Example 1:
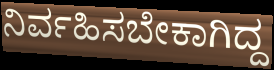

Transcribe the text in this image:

ನಿರ್ವಹಿಸಬೇಕಾಗಿದ್ದ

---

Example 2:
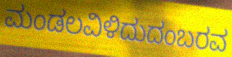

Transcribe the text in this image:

ಮಂಡಲವಿಳಿದುದಂಬರವ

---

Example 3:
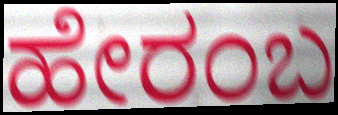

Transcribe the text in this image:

ಹೇರಂಬ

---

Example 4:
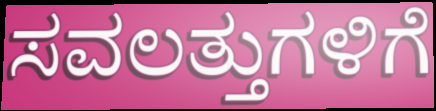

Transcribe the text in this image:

ಸವಲತ್ತುಗಳಿಗೆ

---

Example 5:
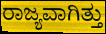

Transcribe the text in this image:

ರಾಜ್ಯವಾಗಿತ್ತು